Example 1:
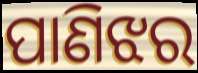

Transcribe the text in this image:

ପାଣିଝର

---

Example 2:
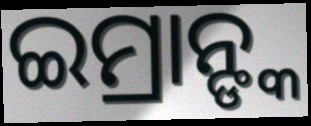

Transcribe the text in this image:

ଇମ୍ରାନ୍ଙ୍କ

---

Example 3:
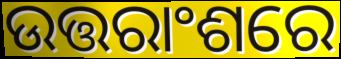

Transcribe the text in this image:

ଉତ୍ତରାଂଶରେ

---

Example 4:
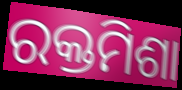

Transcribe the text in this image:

ରକ୍ତମିଶା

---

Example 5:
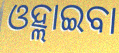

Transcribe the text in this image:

ଓହ୍ଲାଇବା